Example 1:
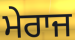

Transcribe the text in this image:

ਮੇਰਾਜ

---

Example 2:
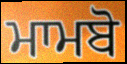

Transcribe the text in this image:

ਮਾਮਬੋ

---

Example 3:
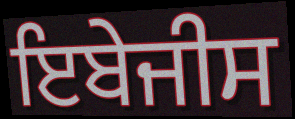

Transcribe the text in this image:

ਇਬੇਜੀਸ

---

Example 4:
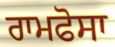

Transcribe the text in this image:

ਰਾਮਫੋਸਾ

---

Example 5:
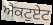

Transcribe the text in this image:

ਐਕਟੁਏਟ